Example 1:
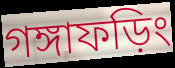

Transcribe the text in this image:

গঙ্গাফড়িং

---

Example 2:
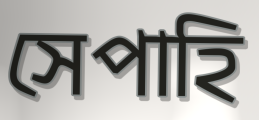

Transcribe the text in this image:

সেপাহি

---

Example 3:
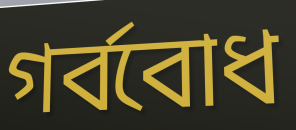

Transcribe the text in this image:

গর্ববোধ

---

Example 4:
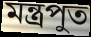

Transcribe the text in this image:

মন্ত্রপুত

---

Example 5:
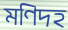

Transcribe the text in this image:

মণিদহ